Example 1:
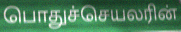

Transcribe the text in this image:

பொதுச்செயலரின்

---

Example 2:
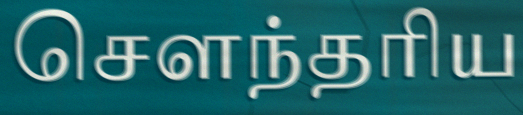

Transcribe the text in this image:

சௌந்தரிய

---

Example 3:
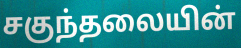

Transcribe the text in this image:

சகுந்தலையின்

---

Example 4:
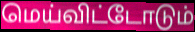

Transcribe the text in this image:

மெய்விட்டோடும்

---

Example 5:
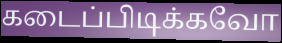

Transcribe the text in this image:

கடைப்பிடிக்கவோ